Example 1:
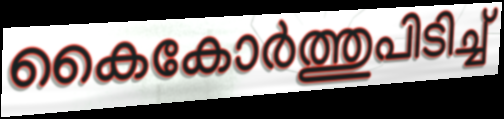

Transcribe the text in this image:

കൈകോർത്തുപിടിച്ച്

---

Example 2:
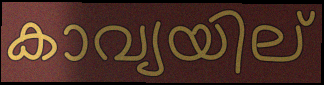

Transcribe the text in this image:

കാവ്യയില്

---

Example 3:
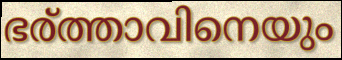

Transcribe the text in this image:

ഭര്ത്താവിനെയും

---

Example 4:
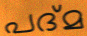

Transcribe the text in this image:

പദ്മ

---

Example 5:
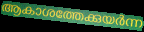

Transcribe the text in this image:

ആകാശത്തേക്കുയർന്ന